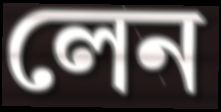
লেন